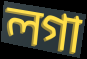
লগা